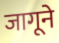
जागूने